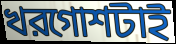
খরগোশটাই